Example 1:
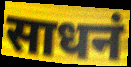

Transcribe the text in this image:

साधनं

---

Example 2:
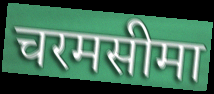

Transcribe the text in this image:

चरमसीमा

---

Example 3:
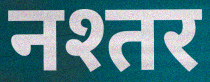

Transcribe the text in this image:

नश्तर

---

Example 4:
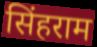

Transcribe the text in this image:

सिंहराम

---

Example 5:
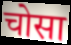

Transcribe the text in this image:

चोसा